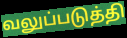
வலுப்படுத்தி